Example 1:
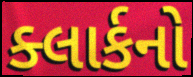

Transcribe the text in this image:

ક્લાર્કનો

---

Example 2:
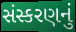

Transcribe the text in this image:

સંસ્કરણનું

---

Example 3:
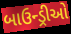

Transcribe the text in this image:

બાઉન્ડ્રીઓ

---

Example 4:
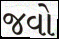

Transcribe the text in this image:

જવો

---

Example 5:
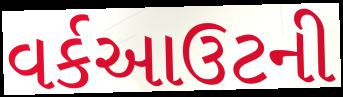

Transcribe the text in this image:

વર્કઆઉટની